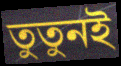
তুতুনই